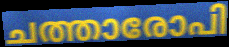
ചത്താരോപി